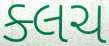
ક્લચ